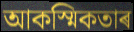
আকস্মিকতাৰ